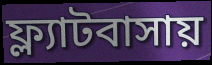
ফ্ল্যাটবাসায়